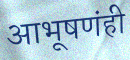
आभूषणंही